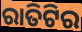
ରାତିଟିର